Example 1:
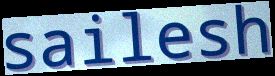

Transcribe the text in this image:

sailesh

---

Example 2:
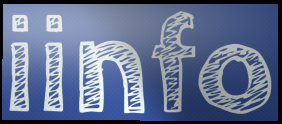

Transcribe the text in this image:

iinfo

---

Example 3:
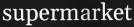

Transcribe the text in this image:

supermarket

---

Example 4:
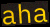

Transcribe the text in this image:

aha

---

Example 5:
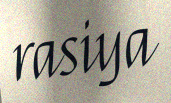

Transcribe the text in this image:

rasiya